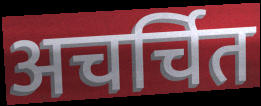
अचर्चित